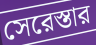
সেরেস্তার